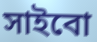
সাইবো